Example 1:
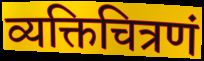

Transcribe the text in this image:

व्यक्तिचित्रणं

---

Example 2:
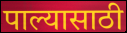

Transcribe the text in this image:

पाल्यासाठी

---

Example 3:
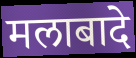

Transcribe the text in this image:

मलाबादे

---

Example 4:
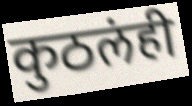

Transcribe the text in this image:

कुठलंही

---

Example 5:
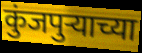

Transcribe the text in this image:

कुंजपुऱ्याच्या